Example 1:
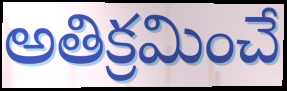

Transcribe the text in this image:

అతిక్రమించే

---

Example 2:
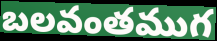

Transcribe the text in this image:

బలవంతముగ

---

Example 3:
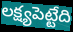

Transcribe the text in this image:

లక్ష్యపెట్టేది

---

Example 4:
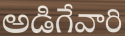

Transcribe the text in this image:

అడిగేవారి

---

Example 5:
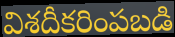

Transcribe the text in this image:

విశదీకరింపబడి